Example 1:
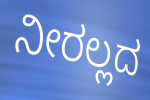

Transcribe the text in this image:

ನೀರಲ್ಲದ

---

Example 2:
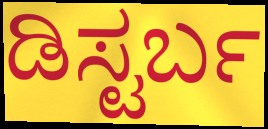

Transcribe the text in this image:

ಡಿಸ್ಟರ್ಬ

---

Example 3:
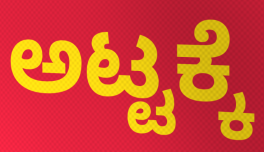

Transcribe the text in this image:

ಅಟ್ಟಕ್ಕೆ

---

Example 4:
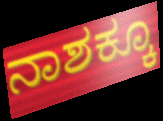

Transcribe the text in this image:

ನಾಶಕ್ಕೂ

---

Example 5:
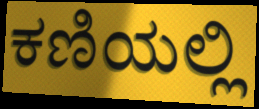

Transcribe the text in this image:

ಕಣಿಯಲ್ಲಿ